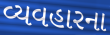
વ્યવહારના